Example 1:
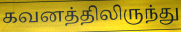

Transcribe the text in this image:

கவனத்திலிருந்து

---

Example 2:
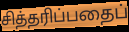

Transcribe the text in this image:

சித்தரிப்பதைப்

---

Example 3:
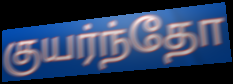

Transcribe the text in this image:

குயர்ந்தோ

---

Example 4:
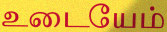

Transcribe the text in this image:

உடையேம்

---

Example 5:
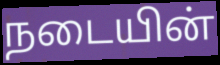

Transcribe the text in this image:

நடையின்